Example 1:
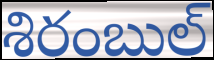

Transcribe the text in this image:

శిరంబుల్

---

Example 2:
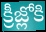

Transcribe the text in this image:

క్రీజ్లోకి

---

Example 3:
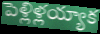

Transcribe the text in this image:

పెళ్లిళ్లయ్యాక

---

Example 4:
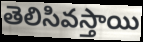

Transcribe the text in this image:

తెలిసివస్తాయి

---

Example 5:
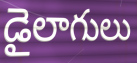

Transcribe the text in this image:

డైలాగులు